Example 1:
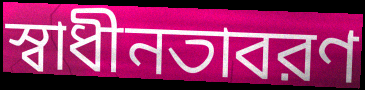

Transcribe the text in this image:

স্বাধীনতাবরণ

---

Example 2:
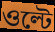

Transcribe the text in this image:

ওল্টে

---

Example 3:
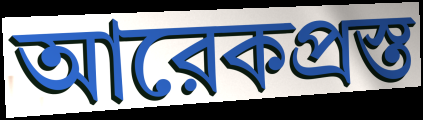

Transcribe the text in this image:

আরেকপ্রস্ত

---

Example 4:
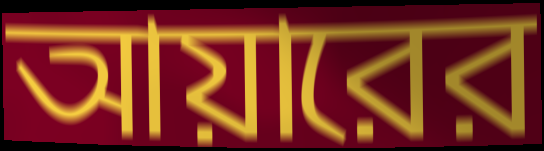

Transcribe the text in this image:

আয়ারের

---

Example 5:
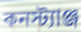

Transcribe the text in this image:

কনস্ট্যাঞ্জ